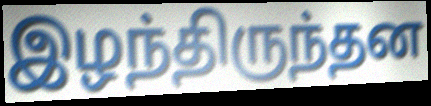
இழந்திருந்தன